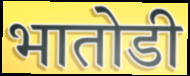
भातोडी